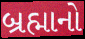
બ્રહ્માનો